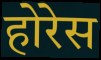
होरेस